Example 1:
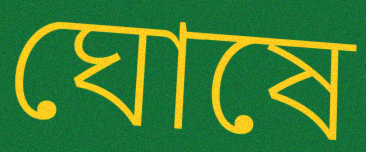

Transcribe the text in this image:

ঘোষে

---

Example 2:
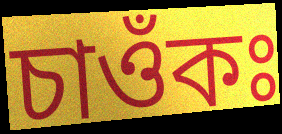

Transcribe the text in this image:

চাওঁকঃ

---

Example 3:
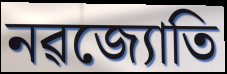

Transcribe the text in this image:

নৱজ্যোতি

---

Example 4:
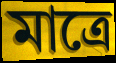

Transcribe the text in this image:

মাত্ৰে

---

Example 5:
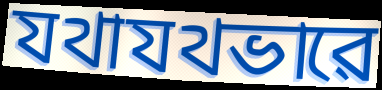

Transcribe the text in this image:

যথাযথভাৱে